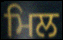
ਮਿਲ